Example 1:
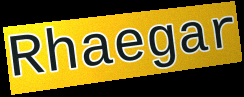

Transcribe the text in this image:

Rhaegar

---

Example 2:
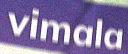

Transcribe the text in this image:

vimala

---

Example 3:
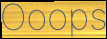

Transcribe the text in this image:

Ooops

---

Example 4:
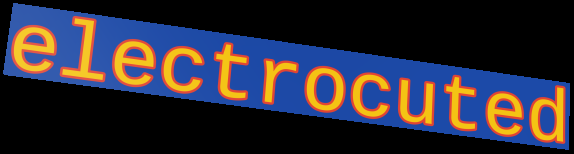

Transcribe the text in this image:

electrocuted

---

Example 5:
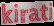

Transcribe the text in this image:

kirati